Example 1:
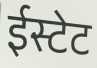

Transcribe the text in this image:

ईस्टेट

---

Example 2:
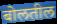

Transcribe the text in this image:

बोलतील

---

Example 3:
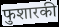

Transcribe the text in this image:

फुशारकी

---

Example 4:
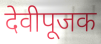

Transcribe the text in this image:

देवीपूजक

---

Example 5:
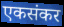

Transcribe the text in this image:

एकसंकर